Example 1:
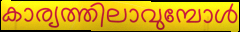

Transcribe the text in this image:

കാര്യത്തിലാവുമ്പോൾ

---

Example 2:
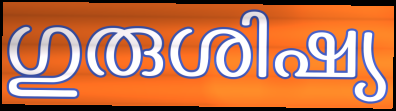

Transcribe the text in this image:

ഗുരുശിഷ്യ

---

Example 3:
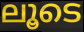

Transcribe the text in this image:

ലൂടെ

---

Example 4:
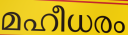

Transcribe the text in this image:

മഹീധരം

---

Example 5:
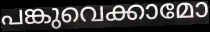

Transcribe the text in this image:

പങ്കുവെക്കാമോ